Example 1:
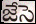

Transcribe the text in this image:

జేసె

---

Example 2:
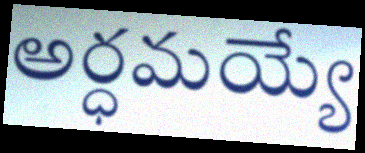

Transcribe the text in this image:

అర్ధమయ్యే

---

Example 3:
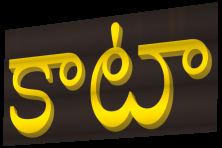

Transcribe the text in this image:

కాటా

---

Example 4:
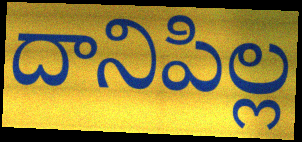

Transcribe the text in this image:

దానిపిల్ల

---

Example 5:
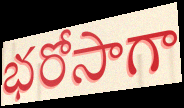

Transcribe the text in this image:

భరోసాగా